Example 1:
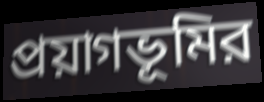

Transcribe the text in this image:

প্রয়াগভূমির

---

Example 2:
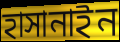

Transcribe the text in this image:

হাসানাইন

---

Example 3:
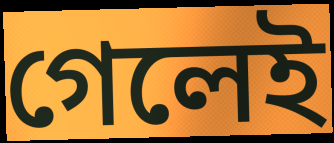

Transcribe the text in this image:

গেলেই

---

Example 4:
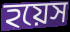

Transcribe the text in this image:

হয়েস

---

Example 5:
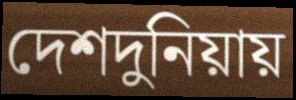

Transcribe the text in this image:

দেশদুনিয়ায়